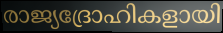
രാജ്യദ്രോഹികളായി